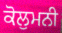
ਕੋਲੁਮਨੀ